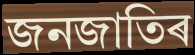
জনজাতিৰ